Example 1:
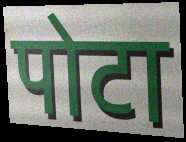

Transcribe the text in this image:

पोटा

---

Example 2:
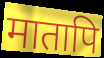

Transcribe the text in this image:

मातापि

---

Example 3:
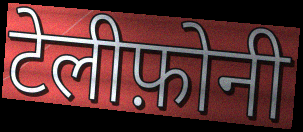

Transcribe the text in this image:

टेलीफ़ोनी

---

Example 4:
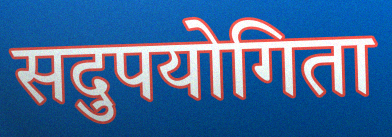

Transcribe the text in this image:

सदुपयोगिता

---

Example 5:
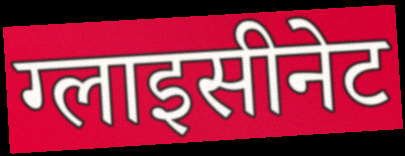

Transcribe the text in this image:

ग्लाइसीनेट